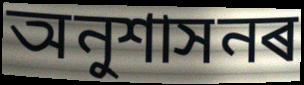
অনুশাসনৰ